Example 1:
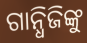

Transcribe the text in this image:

ଗାନ୍ଧିଜିଙ୍କୁ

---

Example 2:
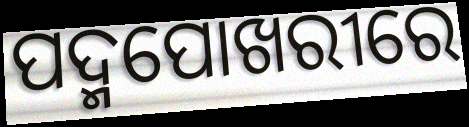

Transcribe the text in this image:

ପଦ୍ମପୋଖରୀରେ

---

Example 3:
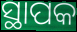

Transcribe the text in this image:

ସ୍ଥାପକ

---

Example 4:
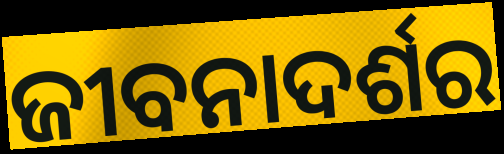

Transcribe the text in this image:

ଜୀବନାଦର୍ଶର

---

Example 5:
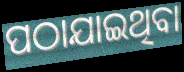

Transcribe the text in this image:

ପଠାଯାଇଥିବା